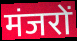
मंजरों